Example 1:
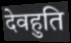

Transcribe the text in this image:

देवहुति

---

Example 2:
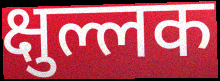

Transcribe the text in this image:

क्षुल्लक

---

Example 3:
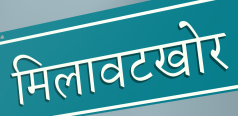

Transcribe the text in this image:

मिलावटखोर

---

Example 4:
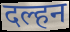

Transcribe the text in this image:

दल्हन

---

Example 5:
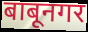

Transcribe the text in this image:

बाबूनगर